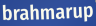
brahmarup